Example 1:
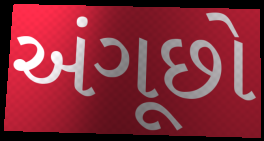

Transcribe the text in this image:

અંગૂછો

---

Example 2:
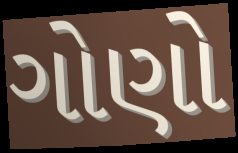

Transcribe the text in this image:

ગોણો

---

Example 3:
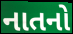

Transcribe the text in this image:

નાતનો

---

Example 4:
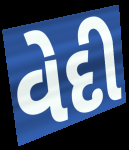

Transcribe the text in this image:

વેદી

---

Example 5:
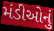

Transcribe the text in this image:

મંડીઓનું